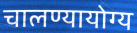
चालण्यायोग्य